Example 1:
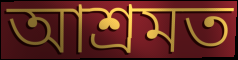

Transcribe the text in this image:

আশ্ৰমত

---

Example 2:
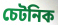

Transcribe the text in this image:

চেটনিক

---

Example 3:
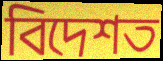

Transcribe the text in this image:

বিদেশত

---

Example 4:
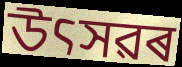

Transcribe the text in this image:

উৎসৱৰ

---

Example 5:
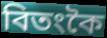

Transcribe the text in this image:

বিতংকৈ